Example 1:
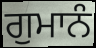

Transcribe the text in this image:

ਗੁਮਾਨੰ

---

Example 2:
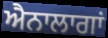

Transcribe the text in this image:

ਐਨਾਲਾਗਾਂ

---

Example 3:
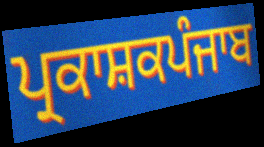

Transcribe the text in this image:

ਪ੍ਰਕਾਸ਼ਕਪੰਜਾਬ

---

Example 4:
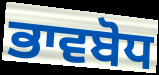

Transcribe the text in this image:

ਭਾਵਬੋਧ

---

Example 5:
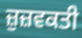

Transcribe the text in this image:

ਜ਼ੁਜ਼ਵਕਤੀ